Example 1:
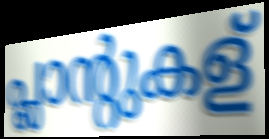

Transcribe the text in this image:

പ്ലാന്റുകള്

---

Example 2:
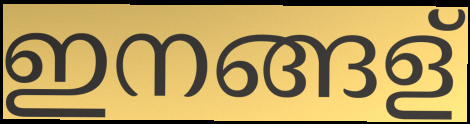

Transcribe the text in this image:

ഇനങ്ങള്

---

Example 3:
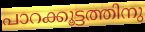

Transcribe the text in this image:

പാറക്കൂട്ടത്തിനു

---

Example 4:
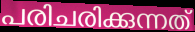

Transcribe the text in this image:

പരിചരിക്കുന്നത്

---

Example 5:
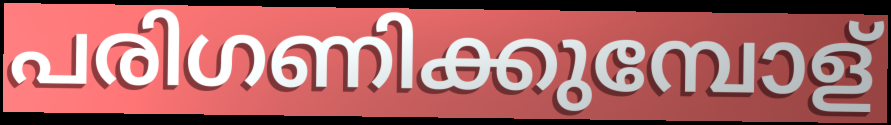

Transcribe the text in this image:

പരിഗണിക്കുമ്പോള്